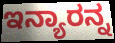
ಇನ್ಯಾರನ್ನ